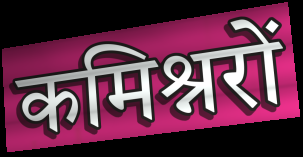
कमिश्नरों